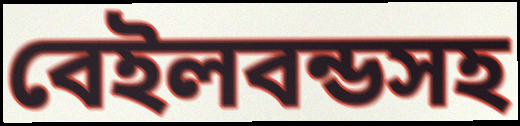
বেইলবন্ডসহ